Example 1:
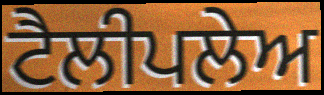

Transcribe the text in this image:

ਟੈਲੀਪਲੇਅ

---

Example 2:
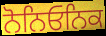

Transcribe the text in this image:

ਨੋਨਿਓਨਿਕ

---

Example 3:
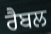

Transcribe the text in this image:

ਰੈਬਲ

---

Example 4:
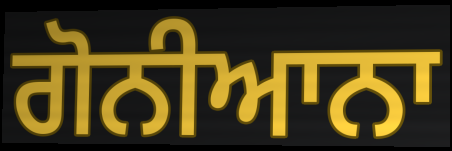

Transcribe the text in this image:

ਗੋਨੀਆਨਾ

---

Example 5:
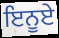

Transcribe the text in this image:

ਇਨੂਏ